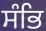
ਸੰਭਿ